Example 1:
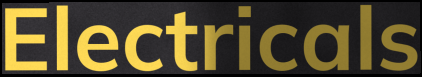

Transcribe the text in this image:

Electricals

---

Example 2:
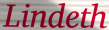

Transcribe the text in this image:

Lindeth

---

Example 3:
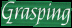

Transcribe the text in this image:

Grasping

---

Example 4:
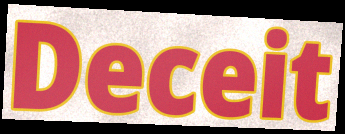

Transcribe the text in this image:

Deceit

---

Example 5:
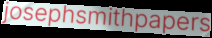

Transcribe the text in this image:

josephsmithpapers